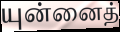
யுன்னைத்